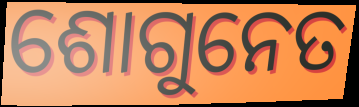
ଶୋଗୁନେତ